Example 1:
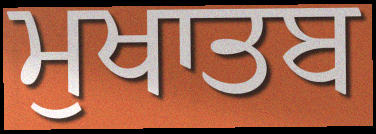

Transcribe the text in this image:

ਮੁਖਾਤਬ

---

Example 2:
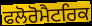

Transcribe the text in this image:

ਫਲੋਰੋਮੈਟਰਿਕ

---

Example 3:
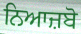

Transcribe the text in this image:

ਨਿਆਜ਼ਬੋ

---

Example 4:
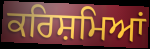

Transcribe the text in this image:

ਕਰਿਸ਼ਮਿਆਂ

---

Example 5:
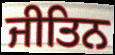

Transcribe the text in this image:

ਜੀਤਿਨ